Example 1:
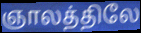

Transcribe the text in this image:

ஞாலத்திலே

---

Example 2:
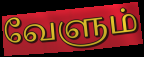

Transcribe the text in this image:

வேளும்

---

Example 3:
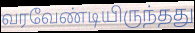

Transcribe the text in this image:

வரவேண்டியிருந்தது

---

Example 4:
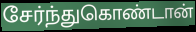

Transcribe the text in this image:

சேர்ந்துகொண்டான்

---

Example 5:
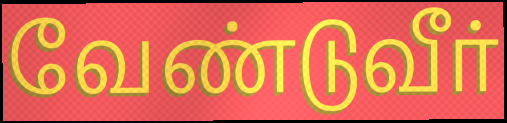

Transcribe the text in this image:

வேண்டுவீர்